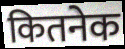
कितनेक